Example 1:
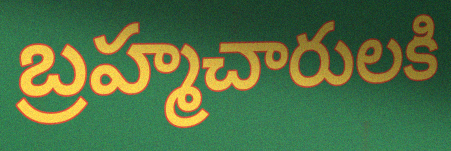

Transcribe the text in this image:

బ్రహ్మచారులకి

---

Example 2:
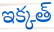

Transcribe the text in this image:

ఇక్కత్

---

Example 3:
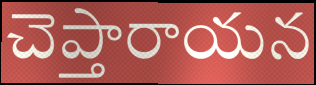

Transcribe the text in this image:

చెప్తారాయన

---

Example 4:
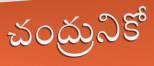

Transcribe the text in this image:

చంద్రునికో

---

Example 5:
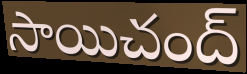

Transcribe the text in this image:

సాయిచంద్